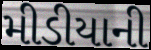
મીડીયાની